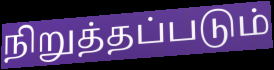
நிறுத்தப்படும்